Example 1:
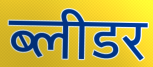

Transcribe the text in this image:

ब्लीडर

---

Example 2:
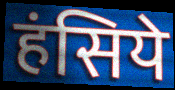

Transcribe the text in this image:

हंसिये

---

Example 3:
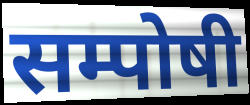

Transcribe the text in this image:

सम्पोषी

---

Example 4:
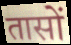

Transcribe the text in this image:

तासों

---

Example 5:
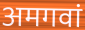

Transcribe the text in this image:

अमगवां